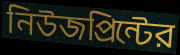
নিউজপ্রিন্টের